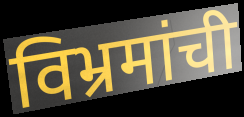
विभ्रमांची